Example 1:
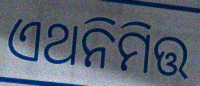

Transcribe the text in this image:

ଏଥନିମିତ୍ତ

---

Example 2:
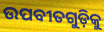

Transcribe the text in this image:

ଉପବୀତଗୁଡ଼ିକୁ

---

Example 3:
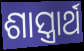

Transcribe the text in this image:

ଶାସ୍ତ୍ରାର୍ଥ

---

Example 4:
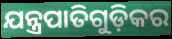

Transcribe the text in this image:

ଯନ୍ତ୍ରପାତିଗୁଡ଼ିକର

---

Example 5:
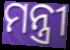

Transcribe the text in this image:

ମନ୍ତ୍ରୀ